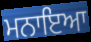
ਮਨਾਇਆ